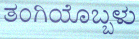
ತಂಗಿಯೊಬ್ಬಳು